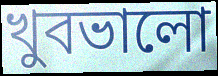
খুবভালো